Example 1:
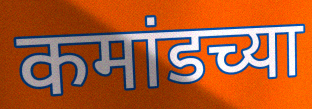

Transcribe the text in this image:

कमांडच्या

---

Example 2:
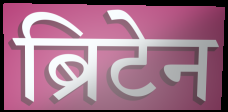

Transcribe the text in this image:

ब्रिटेन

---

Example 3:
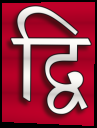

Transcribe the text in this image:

द्वि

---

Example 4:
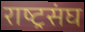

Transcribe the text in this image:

राष्ट्रसंघ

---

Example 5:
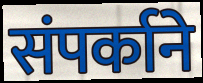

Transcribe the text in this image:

संपर्काने